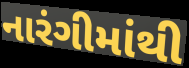
નારંગીમાંથી